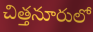
చిత్తనూరులో